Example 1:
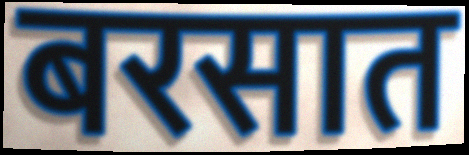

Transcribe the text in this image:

बरसात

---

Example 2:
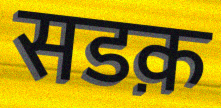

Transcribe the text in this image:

सडक़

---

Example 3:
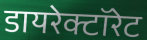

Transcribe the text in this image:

डायरेक्टॉरेट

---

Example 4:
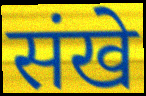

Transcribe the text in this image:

संखे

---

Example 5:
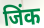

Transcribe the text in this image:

जिंक